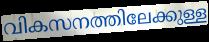
വികസനത്തിലേക്കുള്ള